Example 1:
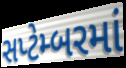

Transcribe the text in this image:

સપ્ટેમ્બરમાં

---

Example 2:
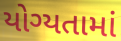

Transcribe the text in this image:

યોગ્યતામાં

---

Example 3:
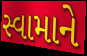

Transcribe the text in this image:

સ્વામાને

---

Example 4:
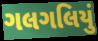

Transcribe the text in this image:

ગલગલિયું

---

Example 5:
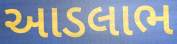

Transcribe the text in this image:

આડલાભ